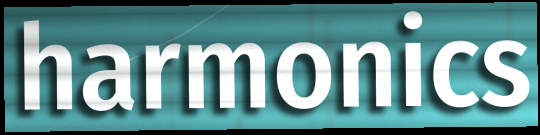
harmonics